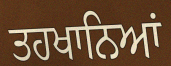
ਤਹਖਾਨਿਆਂ